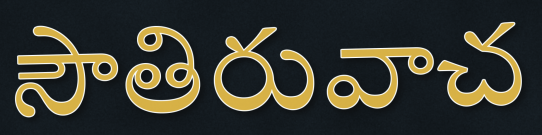
సౌతిరువాచ